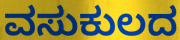
ವಸುಕುಲದ